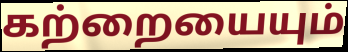
கற்றையையும்